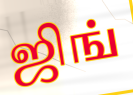
ஜிங்